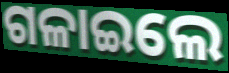
ଗଳାଇଲେ